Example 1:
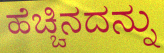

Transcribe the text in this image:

ಹೆಚ್ಚಿನದನ್ನು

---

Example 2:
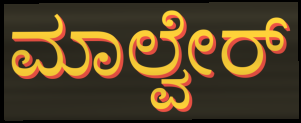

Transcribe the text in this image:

ಮಾಲ್ವೇರ್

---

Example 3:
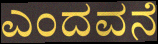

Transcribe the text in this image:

ಎಂದವನೆ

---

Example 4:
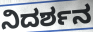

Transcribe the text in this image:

ನಿದರ್ಶನ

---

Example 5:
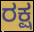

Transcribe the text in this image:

ರಕ್ಷ